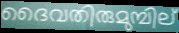
ദൈവതിരുമുമ്പില്